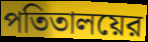
পতিতালয়ের